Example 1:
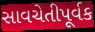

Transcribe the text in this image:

સાવચેતીપૂર્વક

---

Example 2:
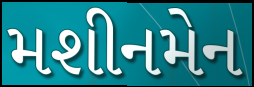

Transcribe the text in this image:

મશીનમેન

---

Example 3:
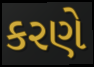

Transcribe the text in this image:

કરણે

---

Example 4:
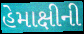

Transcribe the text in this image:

હેમાક્ષીની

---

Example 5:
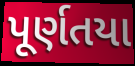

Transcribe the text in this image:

પૂર્ણતયા